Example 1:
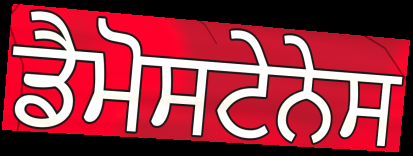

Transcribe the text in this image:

ਡੈਮੋਸਟੇਨੇਸ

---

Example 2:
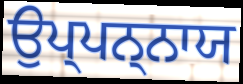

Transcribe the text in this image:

ਉਪ੍ਪਨ੍ਨਾਯ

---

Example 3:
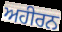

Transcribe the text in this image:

ਅਹੀਰਨ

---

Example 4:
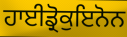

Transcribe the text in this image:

ਹਾਈਡ੍ਰੋਕੁਇਨੋਨ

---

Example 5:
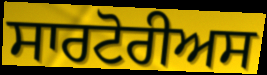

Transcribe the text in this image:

ਸਾਰਟੋਰੀਅਸ